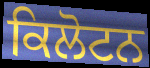
ਕਿਲੋਟਨ